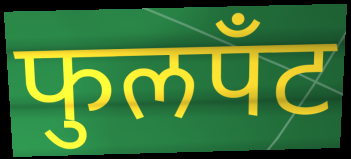
फुलपँट